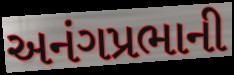
અનંગપ્રભાની